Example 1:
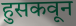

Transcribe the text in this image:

हुसकवून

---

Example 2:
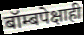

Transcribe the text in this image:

बॉम्बपेक्षाही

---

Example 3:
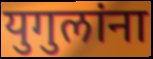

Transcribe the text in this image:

युगुलांना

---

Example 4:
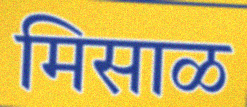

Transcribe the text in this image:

मिसाळ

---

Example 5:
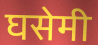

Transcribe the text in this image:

घसेमी